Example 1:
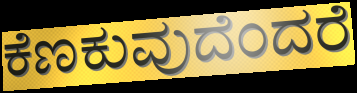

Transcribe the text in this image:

ಕೆಣಕುವುದೆಂದರೆ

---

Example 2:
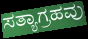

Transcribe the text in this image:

ಸತ್ಯಾಗ್ರಹವು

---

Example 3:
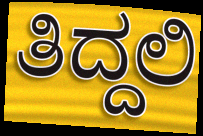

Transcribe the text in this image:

ತಿದ್ದಲಿ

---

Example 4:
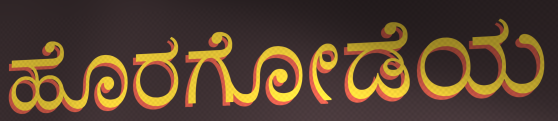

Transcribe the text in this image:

ಹೊರಗೋಡೆಯ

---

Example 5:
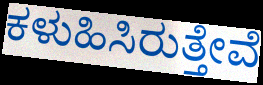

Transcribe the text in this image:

ಕಳುಹಿಸಿರುತ್ತೇವೆ